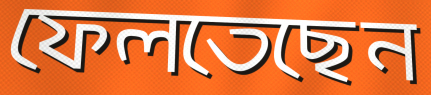
ফেলতেছেন